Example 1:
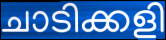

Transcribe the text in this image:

ചാടിക്കളി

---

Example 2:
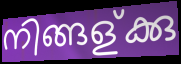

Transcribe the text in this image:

നിങ്ങള്ക്കു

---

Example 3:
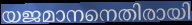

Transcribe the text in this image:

യജമാനനെതിരായി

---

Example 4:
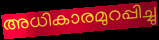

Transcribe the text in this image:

അധികാരമുറപ്പിച്ചു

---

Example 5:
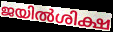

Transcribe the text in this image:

ജയിൽശിക്ഷ